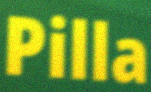
Pilla